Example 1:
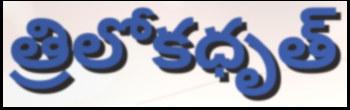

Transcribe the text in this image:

త్రిలోకధృత్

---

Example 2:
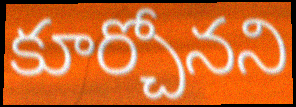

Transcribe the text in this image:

కూర్చోనని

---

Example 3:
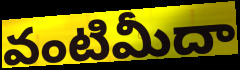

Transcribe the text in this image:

వంటిమీదా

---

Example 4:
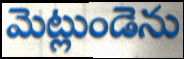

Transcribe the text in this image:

మెట్లుండెను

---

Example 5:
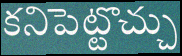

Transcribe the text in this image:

కనిపెట్టొచ్చు